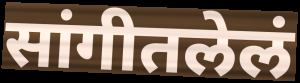
सांगीतलेलं